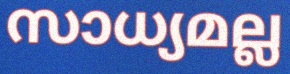
സാധ്യമല്ല